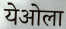
येओला